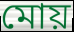
মোয়